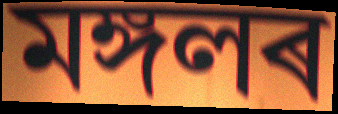
মঙ্গলৰ